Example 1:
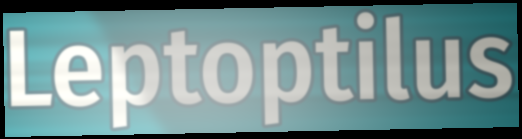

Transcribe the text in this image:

Leptoptilus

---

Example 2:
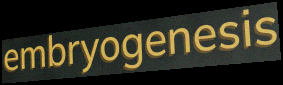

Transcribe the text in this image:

embryogenesis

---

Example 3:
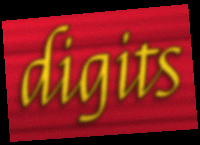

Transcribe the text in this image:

digits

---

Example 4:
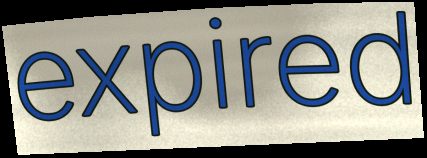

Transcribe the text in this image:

expired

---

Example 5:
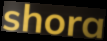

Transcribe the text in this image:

shora